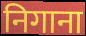
निगाना